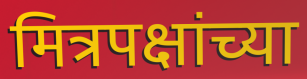
मित्रपक्षांच्या